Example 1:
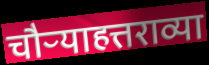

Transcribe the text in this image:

चौऱ्याहत्तराव्या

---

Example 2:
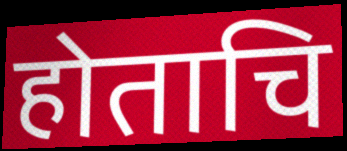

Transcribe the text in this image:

होताचि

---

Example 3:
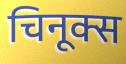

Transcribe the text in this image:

चिनूक्स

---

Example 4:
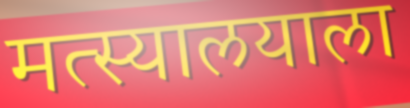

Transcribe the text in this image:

मत्स्यालयाला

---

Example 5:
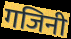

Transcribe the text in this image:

गजिनी